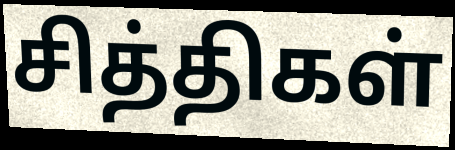
சித்திகள்